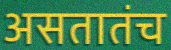
असतातंच